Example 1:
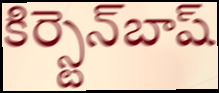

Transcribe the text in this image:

కిర్స్టెన్‌బాష్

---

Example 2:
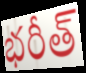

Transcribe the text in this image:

భరీత్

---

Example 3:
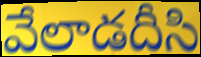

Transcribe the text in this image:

వేలాడదీసి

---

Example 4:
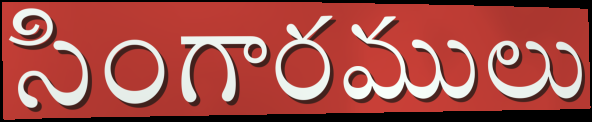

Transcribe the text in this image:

సింగారములు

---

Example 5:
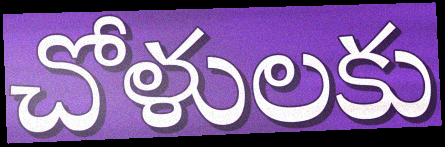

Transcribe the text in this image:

చోళులకు